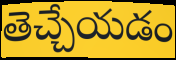
తెచ్చేయడం